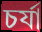
চর্যা